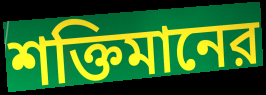
শক্তিমানের